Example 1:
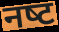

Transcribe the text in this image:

नष्‍ट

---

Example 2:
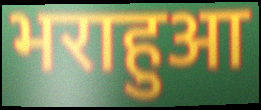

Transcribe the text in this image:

भराहुआ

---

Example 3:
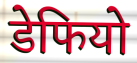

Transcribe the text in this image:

डेफियो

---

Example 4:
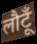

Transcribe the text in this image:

लौटूँ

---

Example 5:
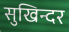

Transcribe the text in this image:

सुखिन्दर